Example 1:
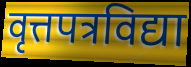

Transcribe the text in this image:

वृत्तपत्रविद्या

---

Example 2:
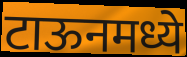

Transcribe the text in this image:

टाऊनमध्ये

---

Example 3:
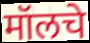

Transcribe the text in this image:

मॉलचे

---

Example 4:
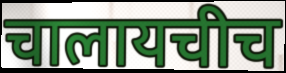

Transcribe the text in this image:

चालायचीच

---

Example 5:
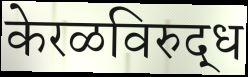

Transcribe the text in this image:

केरळविरुद्ध